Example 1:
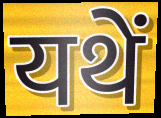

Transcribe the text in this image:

यथें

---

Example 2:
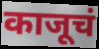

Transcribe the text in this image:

काजूचं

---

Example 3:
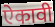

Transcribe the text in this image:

ऐकावी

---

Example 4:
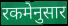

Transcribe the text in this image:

रकमेनुसार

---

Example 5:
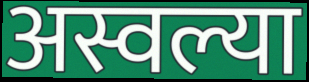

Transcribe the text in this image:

अस्वल्या